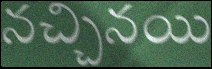
నచ్చినయి